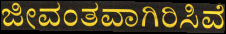
ಜೀವಂತವಾಗಿರಿಸಿವೆ